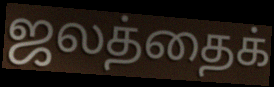
ஜலத்தைக்